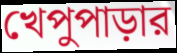
খেপুপাড়ার